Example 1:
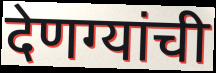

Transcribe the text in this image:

देणग्यांची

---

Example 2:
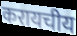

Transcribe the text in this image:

करायचीय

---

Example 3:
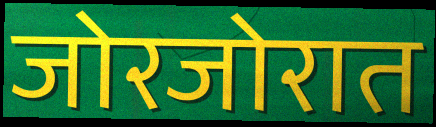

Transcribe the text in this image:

जोरजोरात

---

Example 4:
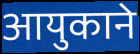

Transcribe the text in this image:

आयुकाने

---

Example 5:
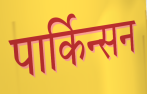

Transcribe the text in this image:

पार्किन्सन